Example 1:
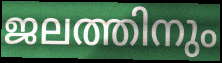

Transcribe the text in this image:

ജലത്തിനും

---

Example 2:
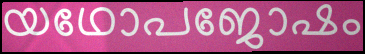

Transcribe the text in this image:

യഥോപജോഷം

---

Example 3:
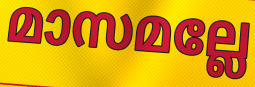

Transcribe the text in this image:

മാസമല്ലേ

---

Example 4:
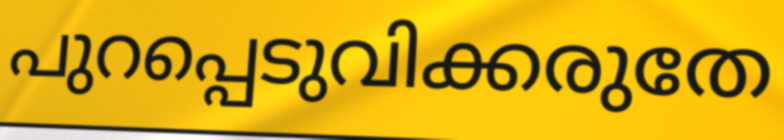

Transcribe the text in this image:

പുറപ്പെടുവിക്കരുതേ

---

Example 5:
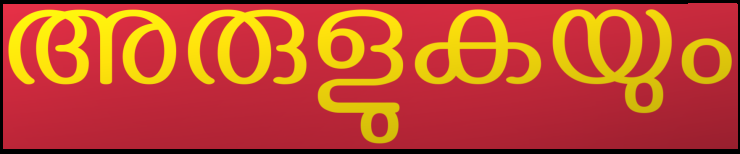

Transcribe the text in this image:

അരുളുകയും